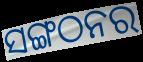
ସଙ୍ଗଠନର